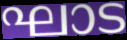
ഘാട